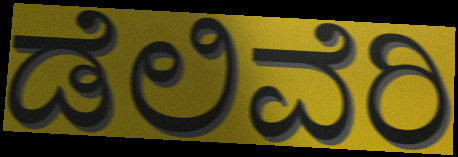
ಡೆಲಿವೆರಿ